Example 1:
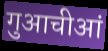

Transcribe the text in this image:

गुआचीआं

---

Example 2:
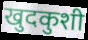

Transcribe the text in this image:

खुदकुशी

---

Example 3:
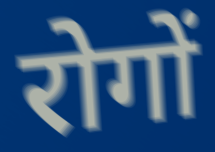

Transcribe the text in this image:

रोगों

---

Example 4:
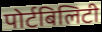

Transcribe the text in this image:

पोर्टबिलिटी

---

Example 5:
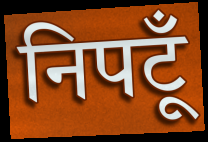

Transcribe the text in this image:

निपटूँ